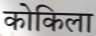
कोकिला